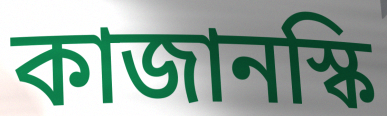
কাজানস্কি